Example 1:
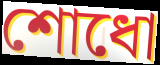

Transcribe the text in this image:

শোধো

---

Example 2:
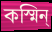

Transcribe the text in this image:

কস্মিন্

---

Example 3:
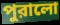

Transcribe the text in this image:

পুরালো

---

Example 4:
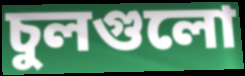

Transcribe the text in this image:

চুলগুলো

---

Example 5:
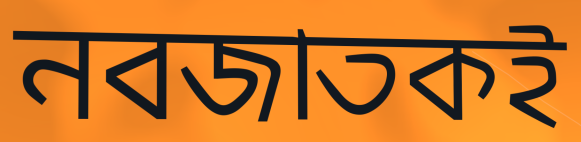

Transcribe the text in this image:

নবজাতকই